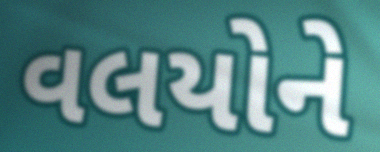
વલયોને